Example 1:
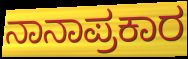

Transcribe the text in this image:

ನಾನಾಪ್ರಕಾರ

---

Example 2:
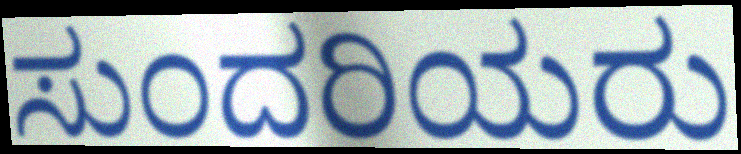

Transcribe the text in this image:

ಸುಂದರಿಯರು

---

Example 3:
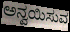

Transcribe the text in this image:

ಅನ್ವಯಿಸುವ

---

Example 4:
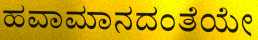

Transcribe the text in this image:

ಹವಾಮಾನದಂತೆಯೇ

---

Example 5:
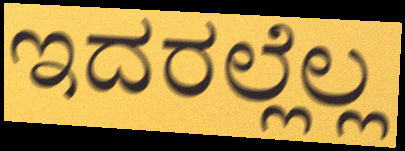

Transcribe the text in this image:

ಇದರಲ್ಲೆಲ್ಲ